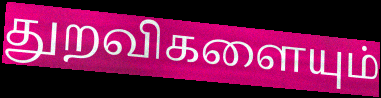
துறவிகளையும்